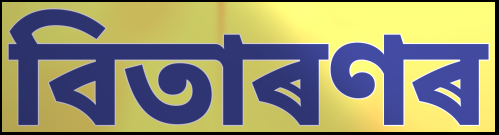
বিতাৰণৰ